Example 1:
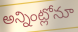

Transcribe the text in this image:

అన్నింట్లోనూ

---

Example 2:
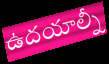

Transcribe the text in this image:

ఉదయాల్నీ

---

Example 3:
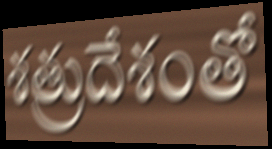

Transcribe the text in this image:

శత్రుదేశంతో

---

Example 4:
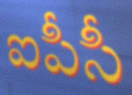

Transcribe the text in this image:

ఐపీసీ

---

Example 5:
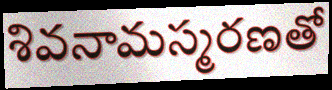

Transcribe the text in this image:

శివనామస్మరణతో